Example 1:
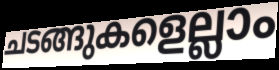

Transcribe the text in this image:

ചടങ്ങുകളെല്ലാം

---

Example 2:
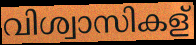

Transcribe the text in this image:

വിശ്വാസികള്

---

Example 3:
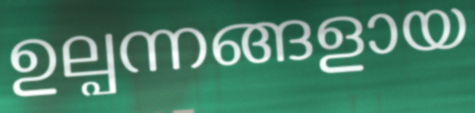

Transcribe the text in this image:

ഉല്പന്നങ്ങളായ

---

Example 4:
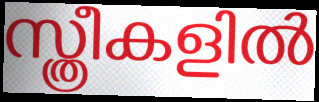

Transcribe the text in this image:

സ്ത്രീകളിൽ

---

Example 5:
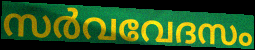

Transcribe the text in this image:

സർവവേദസം